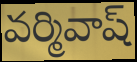
వర్మివాష్